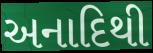
અનાદિથી